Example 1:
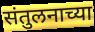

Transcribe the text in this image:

संतुलनाच्या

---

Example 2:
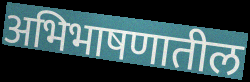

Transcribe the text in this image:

अभिभाषणातील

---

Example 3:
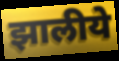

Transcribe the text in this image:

झालीये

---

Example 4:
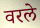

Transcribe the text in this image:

वरले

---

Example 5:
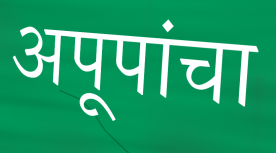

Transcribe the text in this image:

अपूपांचा